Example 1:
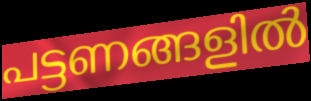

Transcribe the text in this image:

പട്ടണങ്ങളിൽ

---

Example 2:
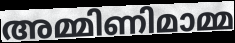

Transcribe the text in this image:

അമ്മിണിമാമ്മ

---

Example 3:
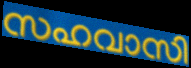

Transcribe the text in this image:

സഹവാസി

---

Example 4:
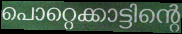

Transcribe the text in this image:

പൊറ്റെക്കാട്ടിന്റെ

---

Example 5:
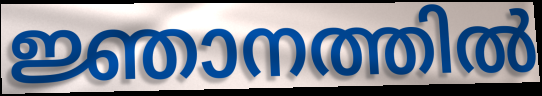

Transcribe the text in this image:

ജ്ഞാനത്തിൽ